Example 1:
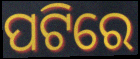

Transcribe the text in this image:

ପଟିରେ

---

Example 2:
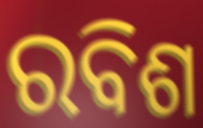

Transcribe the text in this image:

ରବିଶ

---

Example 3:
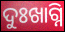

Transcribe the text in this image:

ଦୁଃଖାଗ୍ନି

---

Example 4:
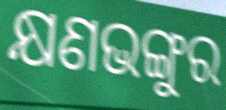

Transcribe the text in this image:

କ୍ଷଣଭଙ୍ଗୁର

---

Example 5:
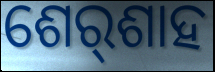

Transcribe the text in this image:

ଶେର୍‌ଶାହ